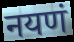
नयणं